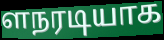
ளநரடியாக